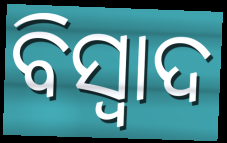
ବିସ୍ୱାଦ